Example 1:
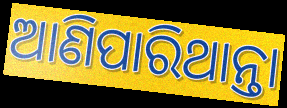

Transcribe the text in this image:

ଆଣିପାରିଥାନ୍ତା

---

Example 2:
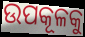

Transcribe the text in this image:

ଉପକୂଳକୁ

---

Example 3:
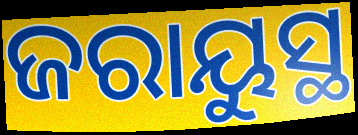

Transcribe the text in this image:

ଜରାୟୁସ୍ଥ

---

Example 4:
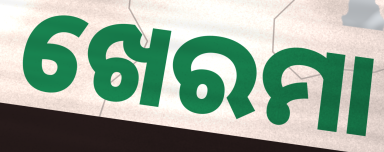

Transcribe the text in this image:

ଖେରମା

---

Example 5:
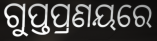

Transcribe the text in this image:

ଗୁପ୍ତପ୍ରଣୟରେ